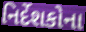
નિર્દેશકોના